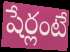
షేర్లంటే